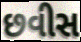
છવીસ